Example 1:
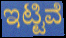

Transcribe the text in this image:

ಇಟ್ಟಿವೆ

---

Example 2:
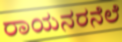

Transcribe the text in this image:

ರಾಯನರನೆಲೆ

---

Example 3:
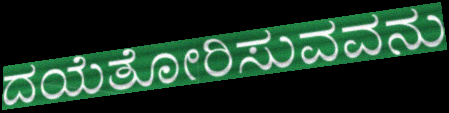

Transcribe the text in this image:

ದಯೆತೋರಿಸುವವನು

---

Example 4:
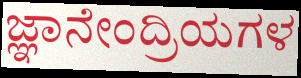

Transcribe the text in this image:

ಜ್ಞಾನೇಂದ್ರಿಯಗಳ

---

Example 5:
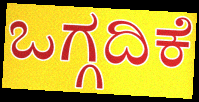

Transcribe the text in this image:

ಒಗ್ಗದಿಕೆ